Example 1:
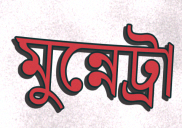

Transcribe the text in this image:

মুন্নেট্ৰা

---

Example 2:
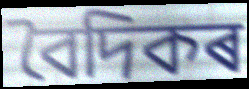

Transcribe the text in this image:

বৈদিকৰ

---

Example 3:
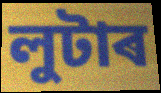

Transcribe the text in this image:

লুটাৰ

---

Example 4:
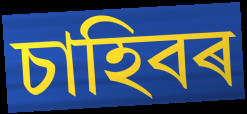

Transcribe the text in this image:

চাহিবৰ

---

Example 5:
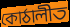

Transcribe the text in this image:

কোঠালীত